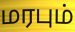
மரபும்